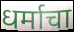
धर्माचा